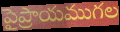
పైప్రాయముగల